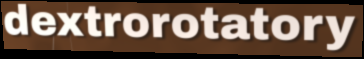
dextrorotatory